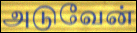
அடுவேன்